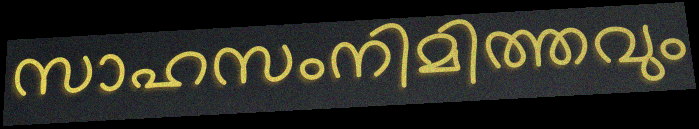
സാഹസംനിമിത്തവും